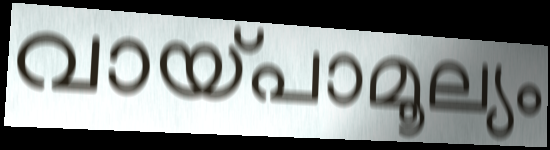
വായ്പാമൂല്യം